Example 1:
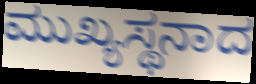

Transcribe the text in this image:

ಮುಖ್ಯಸ್ಥನಾದ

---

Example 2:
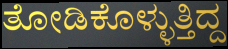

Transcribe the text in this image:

ತೋಡಿಕೊಳ್ಳುತ್ತಿದ್ದ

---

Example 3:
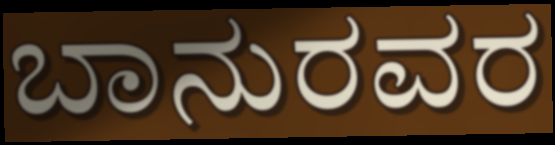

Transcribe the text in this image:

ಬಾನುರವರ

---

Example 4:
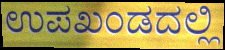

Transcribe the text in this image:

ಉಪಖಂಡದಲ್ಲಿ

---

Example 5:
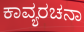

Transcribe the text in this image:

ಕಾವ್ಯರಚನಾ